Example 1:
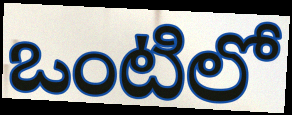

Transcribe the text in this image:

ఒంటిలో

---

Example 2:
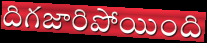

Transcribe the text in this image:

దిగజారిపోయింది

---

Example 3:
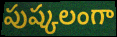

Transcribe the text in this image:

పుష్కలంగా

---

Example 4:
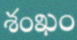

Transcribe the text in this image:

శంఖం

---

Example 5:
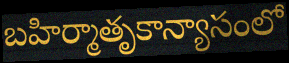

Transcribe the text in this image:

బహిర్మాతృకాన్యాసంలో